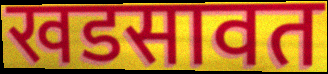
खडसावत